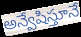
అన్వేషిస్తూనే